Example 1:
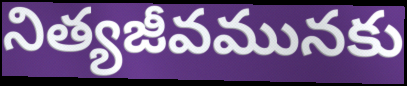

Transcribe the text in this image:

నిత్యజీవమునకు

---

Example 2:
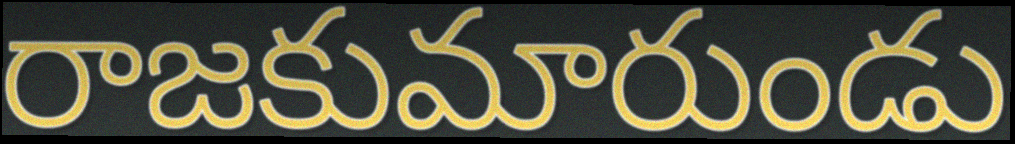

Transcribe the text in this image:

రాజకుమారుండు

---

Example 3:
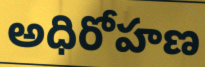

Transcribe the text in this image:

అధిరోహణ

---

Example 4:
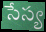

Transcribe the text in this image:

సేస్య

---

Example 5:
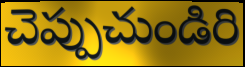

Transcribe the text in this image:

చెప్పుచుండిరి